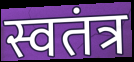
स्वतंत्र